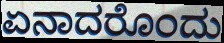
ಏನಾದರೊಂದು